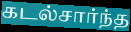
கடல்சார்ந்த